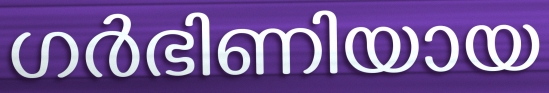
ഗർഭിണിയായ